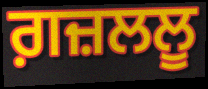
ਗ਼ਜ਼ਲਲੂ